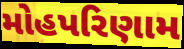
મોહપરિણામ